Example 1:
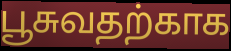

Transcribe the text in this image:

பூசுவதற்காக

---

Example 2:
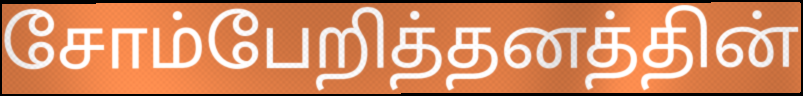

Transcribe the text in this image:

சோம்பேறித்தனத்தின்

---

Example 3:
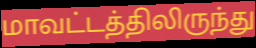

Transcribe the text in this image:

மாவட்டத்திலிருந்து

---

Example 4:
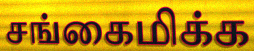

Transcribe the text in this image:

சங்கைமிக்க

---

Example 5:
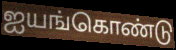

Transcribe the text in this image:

ஐயங்கொண்டு